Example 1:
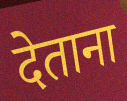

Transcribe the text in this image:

देताना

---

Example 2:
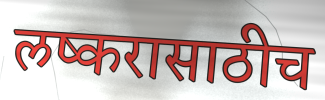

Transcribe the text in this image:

लष्करासाठीच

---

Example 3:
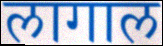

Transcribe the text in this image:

लागाल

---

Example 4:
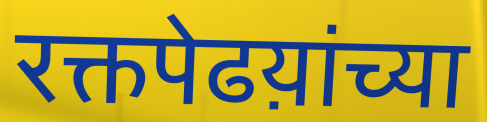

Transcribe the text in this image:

रक्तपेढय़ांच्या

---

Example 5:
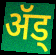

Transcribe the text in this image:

ॲड्